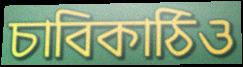
চাবিকাঠিও